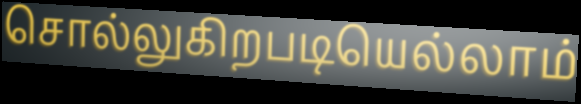
சொல்லுகிறபடியெல்லாம்